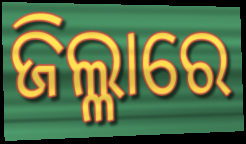
ଜିଲ୍ଳାରେ